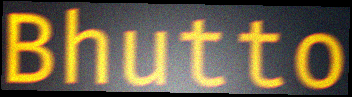
Bhutto